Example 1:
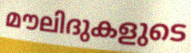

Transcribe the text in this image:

മൗലിദുകളുടെ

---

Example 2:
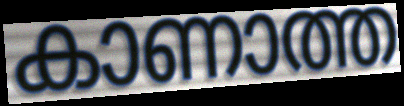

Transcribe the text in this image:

കാണാത്ത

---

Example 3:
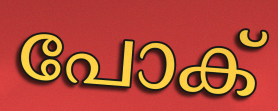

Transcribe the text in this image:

പോക്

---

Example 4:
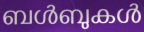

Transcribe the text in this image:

ബൾബുകൾ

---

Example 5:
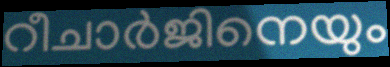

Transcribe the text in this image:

റീചാർജിനെയും